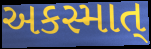
અકસ્માત્